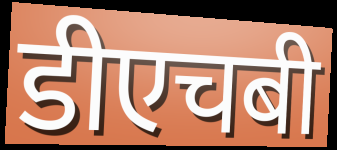
डीएचबी